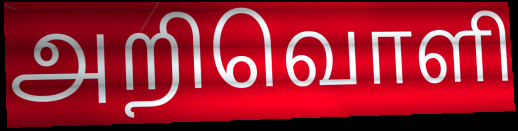
அறிவொளி